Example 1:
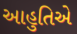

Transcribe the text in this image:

આહુતિએ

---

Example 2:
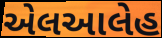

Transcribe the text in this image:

એલઆલેહ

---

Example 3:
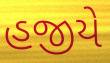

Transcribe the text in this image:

હજીયે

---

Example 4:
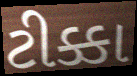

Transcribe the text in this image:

ટીક્કા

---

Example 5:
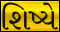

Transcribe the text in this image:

શિષ્યે